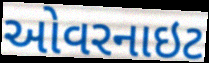
ઓવરનાઇટ